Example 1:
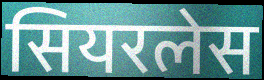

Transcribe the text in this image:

सियरलेस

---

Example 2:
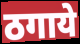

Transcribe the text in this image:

ठगाये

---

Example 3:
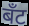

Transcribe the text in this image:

बँट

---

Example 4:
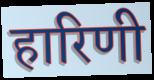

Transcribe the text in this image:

हारिणी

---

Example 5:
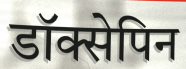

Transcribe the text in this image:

डॉक्सेपिन